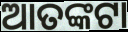
ଆତଙ୍କଟା